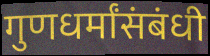
गुणधर्मांसंबंधी